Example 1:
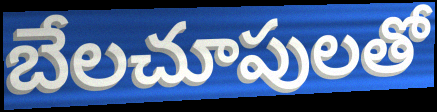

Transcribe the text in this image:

బేలచూపులతో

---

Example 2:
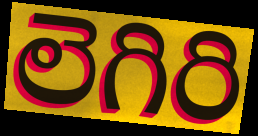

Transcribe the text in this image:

లెగిరి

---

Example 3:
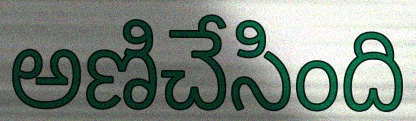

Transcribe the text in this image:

అణిచేసింది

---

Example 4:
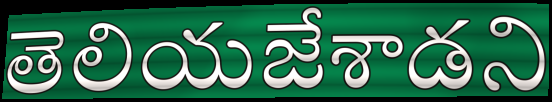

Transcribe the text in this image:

తెలియజేశాడని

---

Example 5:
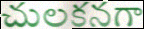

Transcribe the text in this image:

చులకనగా